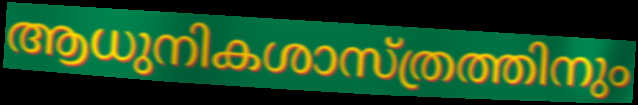
ആധുനികശാസ്ത്രത്തിനും